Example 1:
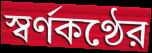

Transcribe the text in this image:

স্বর্ণকণ্ঠের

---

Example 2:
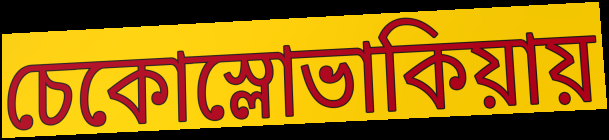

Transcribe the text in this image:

চেকোস্লোভাকিয়ায়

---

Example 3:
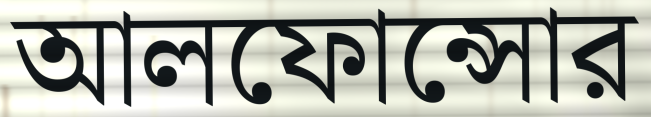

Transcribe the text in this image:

আলফোন্সোর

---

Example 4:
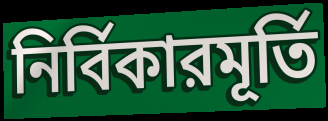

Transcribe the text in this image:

নির্বিকারমূর্তি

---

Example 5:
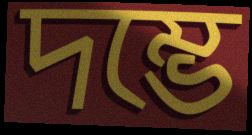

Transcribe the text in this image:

দম্ভে